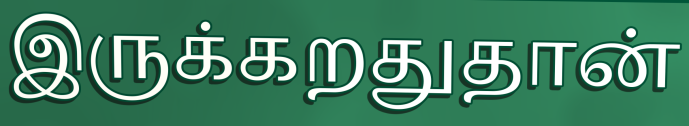
இருக்கறதுதான்